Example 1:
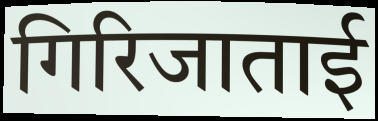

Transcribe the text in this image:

गिरिजाताई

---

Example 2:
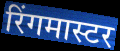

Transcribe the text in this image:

रिंगमास्टर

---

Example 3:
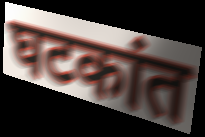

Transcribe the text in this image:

घटकांत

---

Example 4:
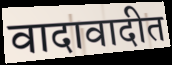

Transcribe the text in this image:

वादावादीत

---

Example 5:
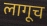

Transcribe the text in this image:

लागूच